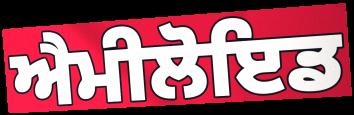
ਐਮੀਲੋਇਡ